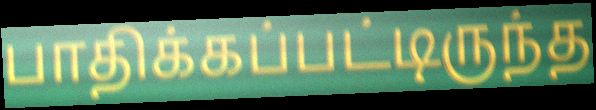
பாதிக்கப்பட்டிருந்த